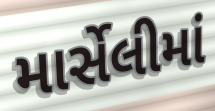
માર્સેલીમાં